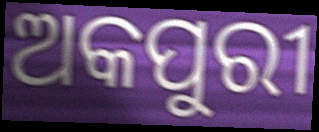
ଅକପୁରୀ